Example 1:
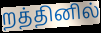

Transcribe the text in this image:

றத்தினில்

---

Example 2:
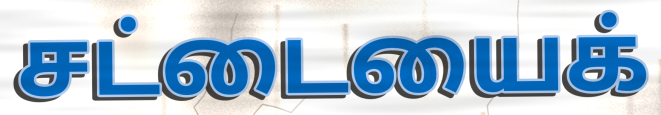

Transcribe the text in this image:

சட்டையைக்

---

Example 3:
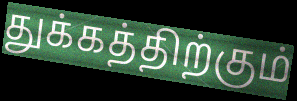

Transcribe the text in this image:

துக்கத்திற்கும்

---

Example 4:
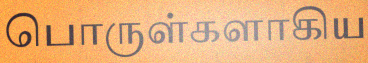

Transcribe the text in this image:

பொருள்களாகிய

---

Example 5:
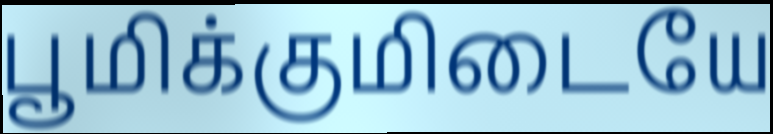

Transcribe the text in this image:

பூமிக்குமிடையே